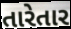
તારેતાર